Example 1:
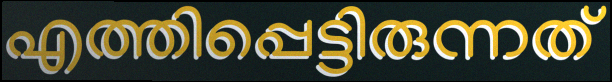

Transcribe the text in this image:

എത്തിപ്പെട്ടിരുന്നത്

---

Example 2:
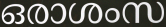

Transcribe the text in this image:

ഒരാശംസ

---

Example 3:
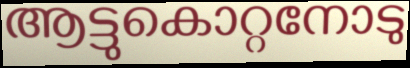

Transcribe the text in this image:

ആട്ടുകൊറ്റനോടു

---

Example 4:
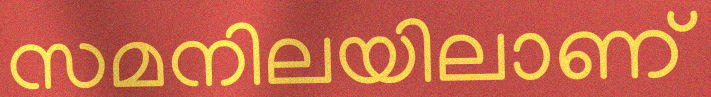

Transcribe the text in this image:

സമനിലയിലാണ്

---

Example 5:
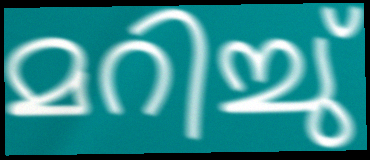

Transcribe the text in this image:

മറിച്ചു്